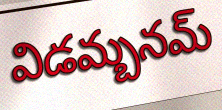
విడమ్బనమ్